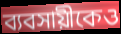
ব্যবসায়ীকেও